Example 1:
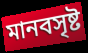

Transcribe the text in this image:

মানবসৃষ্ট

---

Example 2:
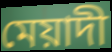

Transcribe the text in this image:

মেয়াদী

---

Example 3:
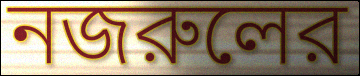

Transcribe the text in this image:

নজরুলের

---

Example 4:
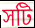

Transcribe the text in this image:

সটি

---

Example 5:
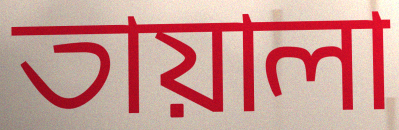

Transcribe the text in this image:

তায়ালা